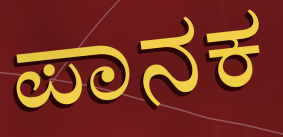
ಪಾನಕ